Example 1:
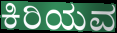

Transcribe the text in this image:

ಕಿರಿಯವ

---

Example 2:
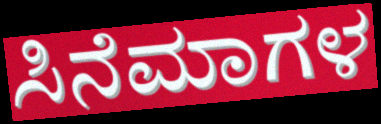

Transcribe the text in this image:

ಸಿನೆಮಾಗಳ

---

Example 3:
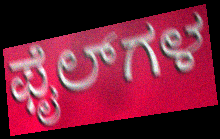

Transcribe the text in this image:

ಫೈಲ್‌ಗಳ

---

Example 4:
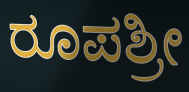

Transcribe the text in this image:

ರೂಪಶ್ರೀ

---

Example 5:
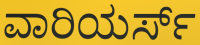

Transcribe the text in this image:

ವಾರಿಯರ್ಸ್